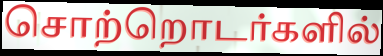
சொற்றொடர்களில்